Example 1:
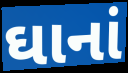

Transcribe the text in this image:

ઘાનાં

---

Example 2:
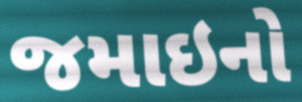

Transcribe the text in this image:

જમાઇનો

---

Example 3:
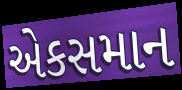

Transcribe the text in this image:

એકસમાન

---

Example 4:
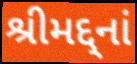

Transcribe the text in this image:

શ્રીમદ્દ્નાં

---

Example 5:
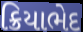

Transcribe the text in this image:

ક્રિયાભેદ